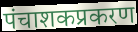
पंचाशकप्रकरण